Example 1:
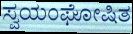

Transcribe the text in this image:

ಸ್ವಯಂಘೋಷಿತ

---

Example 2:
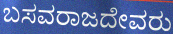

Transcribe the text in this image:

ಬಸವರಾಜದೇವರು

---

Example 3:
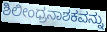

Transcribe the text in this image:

ಶಿಲೀಂಧ್ರನಾಶಕವನ್ನು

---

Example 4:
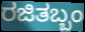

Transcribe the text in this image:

ರಜಿತಬ್ಬಂ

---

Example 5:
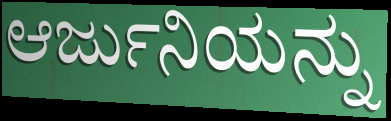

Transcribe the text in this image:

ಆರ್ಜುನಿಯನ್ನು